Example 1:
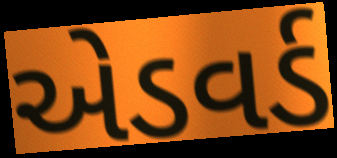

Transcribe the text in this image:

એડવર્ડ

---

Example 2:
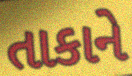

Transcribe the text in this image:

તાકાને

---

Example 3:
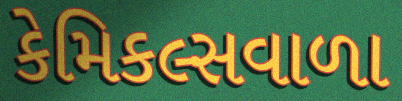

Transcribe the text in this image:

કેમિકલ્સવાળા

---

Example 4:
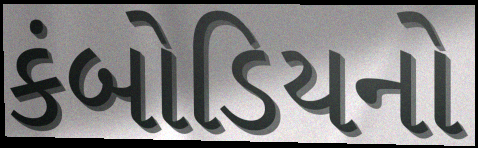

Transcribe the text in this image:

કંબોડિયનો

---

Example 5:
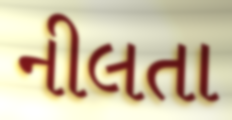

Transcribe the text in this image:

નીલતા